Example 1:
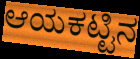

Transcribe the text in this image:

ಆಯಕಟ್ಟಿನ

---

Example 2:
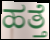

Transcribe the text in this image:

ಹತ್ತೆ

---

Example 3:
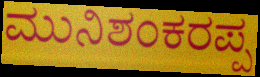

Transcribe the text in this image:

ಮುನಿಶಂಕರಪ್ಪ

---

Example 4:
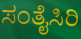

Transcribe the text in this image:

ಸಂತೈಸಿರಿ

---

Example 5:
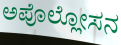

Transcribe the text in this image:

ಅಪೊಲ್ಲೋಸನ